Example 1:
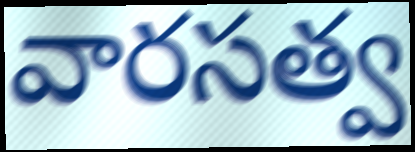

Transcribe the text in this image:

వారసత్వ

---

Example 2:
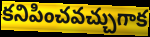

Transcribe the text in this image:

కనిపించవచ్చుగాక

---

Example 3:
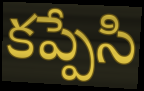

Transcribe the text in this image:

కప్పేసి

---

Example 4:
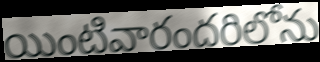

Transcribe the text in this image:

యింటివారందరిలోను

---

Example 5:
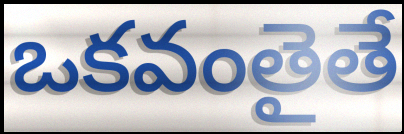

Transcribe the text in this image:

ఒకవంతైతే